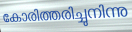
കോരിത്തരിച്ചുനിന്നു